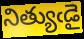
నిత్యుఁడై